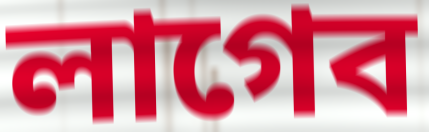
লাগেব